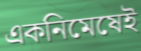
একনিমেষেই